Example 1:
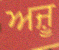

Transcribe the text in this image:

ਅਜ਼ੂ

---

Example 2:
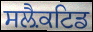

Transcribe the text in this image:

ਸਲ਼ੈਕਟਿਡ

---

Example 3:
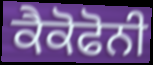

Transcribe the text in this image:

ਕੈਕੋਫੋਨੀ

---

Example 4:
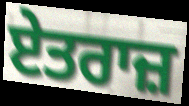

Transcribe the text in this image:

ਏਤਰਾਜ਼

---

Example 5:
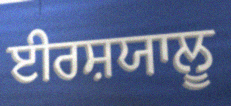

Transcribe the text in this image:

ਈਰਸ਼ਯਾਲੂ